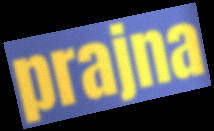
prajna